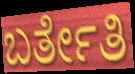
ಬರ್ತೇತಿ